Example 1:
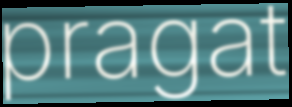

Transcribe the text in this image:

pragat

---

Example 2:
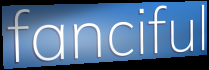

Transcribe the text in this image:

fanciful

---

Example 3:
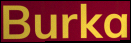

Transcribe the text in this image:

Burka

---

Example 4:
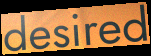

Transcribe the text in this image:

desired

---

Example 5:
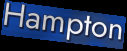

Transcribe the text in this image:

Hampton